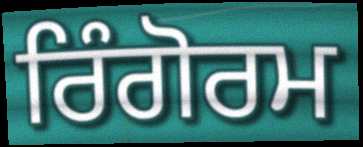
ਰਿੰਗੋਰਮ